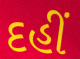
દહીં